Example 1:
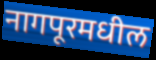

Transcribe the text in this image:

नागपूरमधील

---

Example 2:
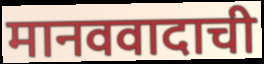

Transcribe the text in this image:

मानववादाची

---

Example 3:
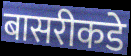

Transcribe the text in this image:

बासरीकडे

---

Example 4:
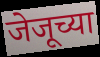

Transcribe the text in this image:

जेजूच्या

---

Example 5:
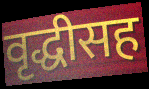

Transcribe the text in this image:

वृद्धीसह